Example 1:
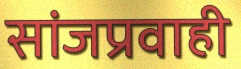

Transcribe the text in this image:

सांजप्रवाही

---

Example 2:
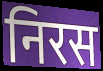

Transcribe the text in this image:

निरस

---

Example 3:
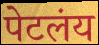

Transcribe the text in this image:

पेटलंय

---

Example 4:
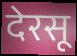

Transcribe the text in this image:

देरसू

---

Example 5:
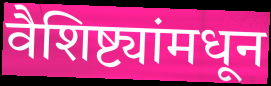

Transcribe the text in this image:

वैशिष्ट्यांमधून